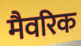
मैवरिक